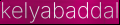
kelyabaddal